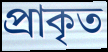
প্ৰাকৃত